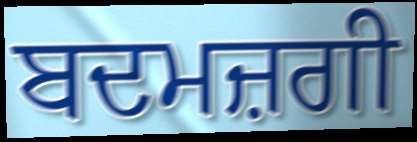
ਬਦਮਜ਼ਗੀ